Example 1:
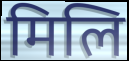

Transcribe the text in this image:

मिलि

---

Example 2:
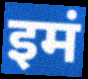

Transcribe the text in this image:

इमं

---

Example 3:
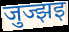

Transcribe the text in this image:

जुज्झइ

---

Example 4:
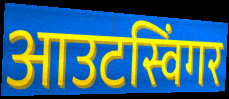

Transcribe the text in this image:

आउटस्विंगर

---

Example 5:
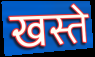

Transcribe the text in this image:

खस्ते